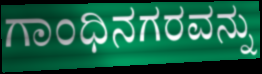
ಗಾಂಧಿನಗರವನ್ನು